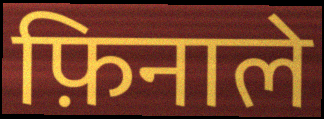
फ़िनाले